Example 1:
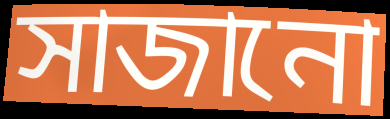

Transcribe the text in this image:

সাজানো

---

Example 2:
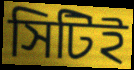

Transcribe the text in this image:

সিটিই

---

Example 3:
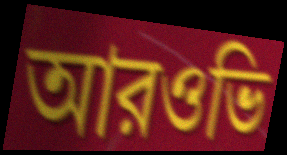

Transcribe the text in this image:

আরওভি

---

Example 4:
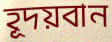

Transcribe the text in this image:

হূদয়বান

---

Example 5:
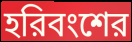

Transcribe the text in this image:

হরিবংশের